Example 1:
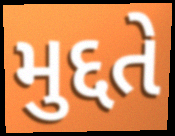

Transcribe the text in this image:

મુદ્દતે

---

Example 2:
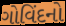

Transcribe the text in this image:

ગોવિંદનો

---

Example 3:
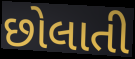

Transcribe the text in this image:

છોલાતી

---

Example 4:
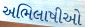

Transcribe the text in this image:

અભિલાષીઓ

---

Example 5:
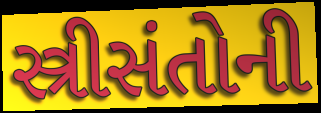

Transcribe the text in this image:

સ્ત્રીસંતોની